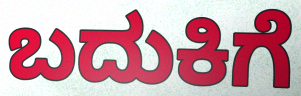
ಬದುಕಿಗೆ